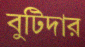
বুটিদার